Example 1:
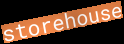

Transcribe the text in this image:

storehouse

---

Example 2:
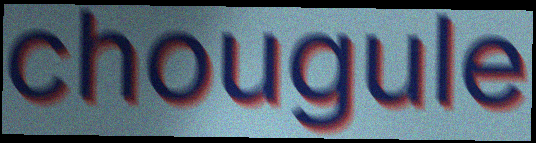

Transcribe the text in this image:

chougule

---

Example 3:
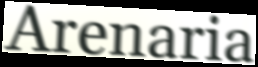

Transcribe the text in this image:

Arenaria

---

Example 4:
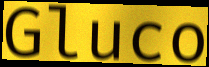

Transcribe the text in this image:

Gluco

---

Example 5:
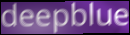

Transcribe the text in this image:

deepblue